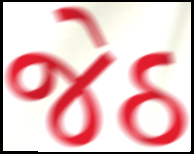
જેઠ